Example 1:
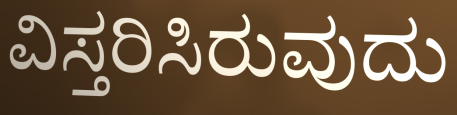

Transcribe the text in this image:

ವಿಸ್ತರಿಸಿರುವುದು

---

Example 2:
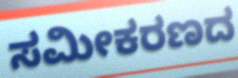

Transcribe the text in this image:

ಸಮೀಕರಣದ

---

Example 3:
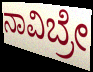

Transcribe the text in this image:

ನಾವಿಬ್ರೇ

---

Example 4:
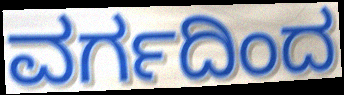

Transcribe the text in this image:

ವರ್ಗದಿಂದ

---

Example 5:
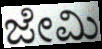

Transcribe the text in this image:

ಜೇಮಿ